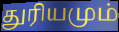
துரியமும்